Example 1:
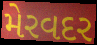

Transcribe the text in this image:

મેરવદર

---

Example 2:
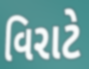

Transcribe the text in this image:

વિરાટે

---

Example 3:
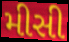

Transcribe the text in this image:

મીસી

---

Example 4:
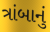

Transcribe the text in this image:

ત્રાંબાનું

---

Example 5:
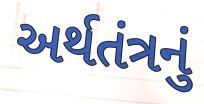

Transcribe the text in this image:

અર્થતંત્રનું